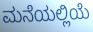
ಮನೆಯಲ್ಲಿಯೆ